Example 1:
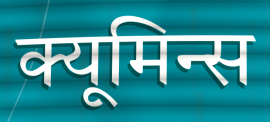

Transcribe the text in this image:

क्यूमिन्स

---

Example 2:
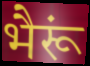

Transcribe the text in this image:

भैरूं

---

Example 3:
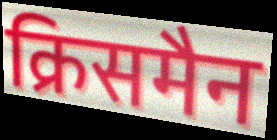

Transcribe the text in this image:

क्रिसमैन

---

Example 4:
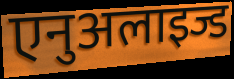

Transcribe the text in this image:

एनुअलाइज्ड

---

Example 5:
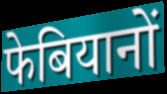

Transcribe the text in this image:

फेबियानों